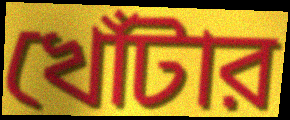
খোঁটার